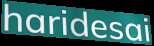
haridesai